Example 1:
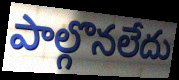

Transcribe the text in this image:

పాల్గొనలేదు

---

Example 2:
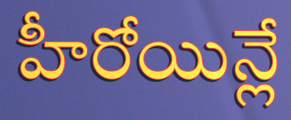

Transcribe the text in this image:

హీరోయిన్లే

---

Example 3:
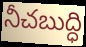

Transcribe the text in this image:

నీచబుద్ధి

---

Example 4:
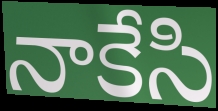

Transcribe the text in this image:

నాకేసి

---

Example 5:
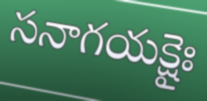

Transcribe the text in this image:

సనాగయక్షైః